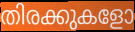
തിരക്കുകളോ